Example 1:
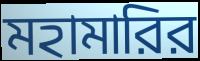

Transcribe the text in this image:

মহামারির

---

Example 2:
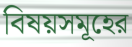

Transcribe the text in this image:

বিষয়সমূহের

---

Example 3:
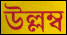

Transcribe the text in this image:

উল্লম্ব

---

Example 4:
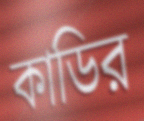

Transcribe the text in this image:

কাডির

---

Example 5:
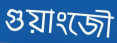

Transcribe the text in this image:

গুয়াংজৌ